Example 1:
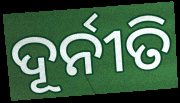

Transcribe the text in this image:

ଦୂର୍ନୀତି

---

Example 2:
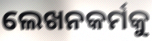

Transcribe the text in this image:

ଲେଖନକର୍ମକୁ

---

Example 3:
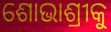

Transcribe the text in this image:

ଶୋଭାଶ୍ରୀକୁ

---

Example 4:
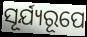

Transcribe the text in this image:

ସୂର୍ଯ୍ୟରୂପେ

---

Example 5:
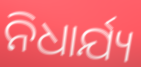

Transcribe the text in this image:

ନିଧାର୍ଯ୍ୟ